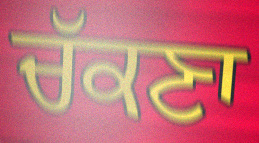
ਚੱਕਣਾ